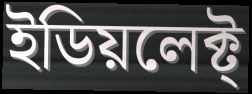
ইডিয়লেক্ট্